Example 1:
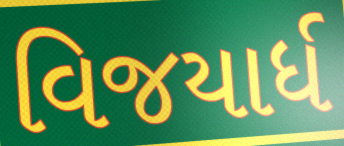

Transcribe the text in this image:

વિજયાર્ધ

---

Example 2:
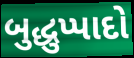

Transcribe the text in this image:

બુદ્ધુપ્પાદો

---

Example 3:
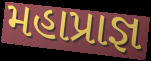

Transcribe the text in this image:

મહાપ્રાજ્ઞ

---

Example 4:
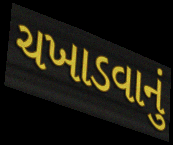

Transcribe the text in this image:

ચખાડવાનું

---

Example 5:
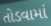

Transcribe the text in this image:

તોડવામાં